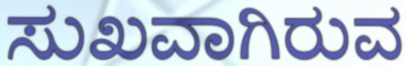
ಸುಖವಾಗಿರುವ